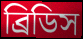
ব্রিডিস